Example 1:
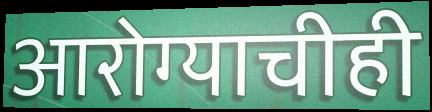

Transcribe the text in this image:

आरोग्याचीही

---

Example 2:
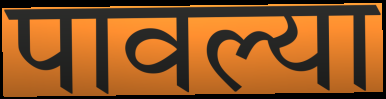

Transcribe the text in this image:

पावल्या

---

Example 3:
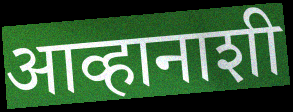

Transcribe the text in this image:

आव्हानाशी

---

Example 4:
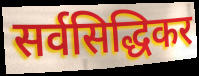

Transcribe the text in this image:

सर्वसिद्धिकर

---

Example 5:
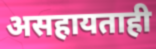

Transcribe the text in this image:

असहायताही